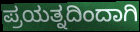
ಪ್ರಯತ್ನದಿಂದಾಗಿ